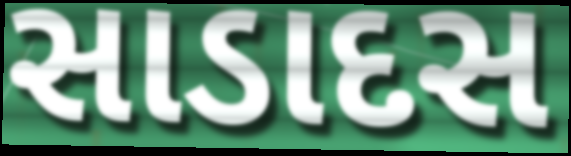
સાડાદસ